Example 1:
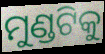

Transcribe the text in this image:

ମୁଣ୍ଡଟିକୁ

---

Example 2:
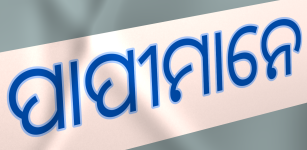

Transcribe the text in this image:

ପାପୀମାନେ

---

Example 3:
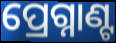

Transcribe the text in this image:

ପ୍ରେଗ୍ନାଣ୍ଟ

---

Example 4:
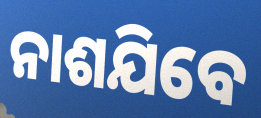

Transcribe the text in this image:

ନାଶଯିବେ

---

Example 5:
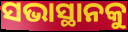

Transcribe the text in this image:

ସଭାସ୍ଥାନକୁ